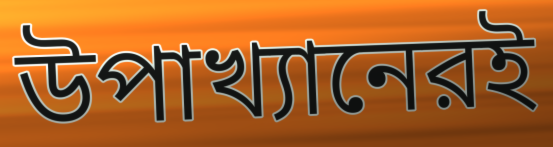
উপাখ্যানেরই